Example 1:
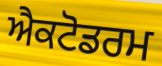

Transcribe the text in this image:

ਐਕਟੋਡਰਮ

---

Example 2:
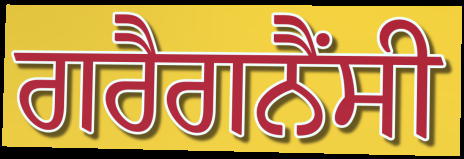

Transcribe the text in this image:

ਗਰੈਗਨੈਂਸੀ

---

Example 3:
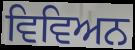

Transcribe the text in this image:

ਵਿਵਿਅਨ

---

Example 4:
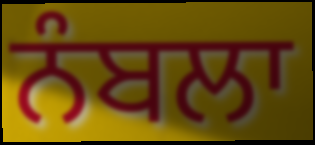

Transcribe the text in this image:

ਨੰਬਲਾ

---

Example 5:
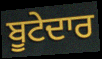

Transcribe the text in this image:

ਬੂਟੇਦਾਰ